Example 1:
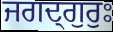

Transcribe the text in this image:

ਜਗਦ੍ਗੁਰੁਃ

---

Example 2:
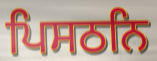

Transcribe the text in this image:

ਪਿਸਠਨਿ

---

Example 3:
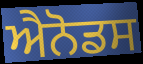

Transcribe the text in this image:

ਐਨੋਡਸ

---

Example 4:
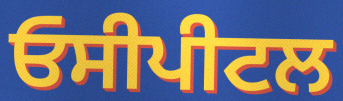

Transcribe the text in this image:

ਓਸੀਪੀਟਲ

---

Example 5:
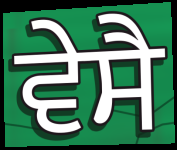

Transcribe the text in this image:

ਵੇਸੈ